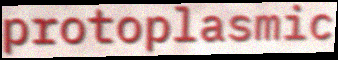
protoplasmic